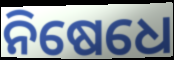
ନିଷେଧେ